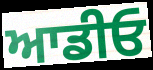
ਆਡੀਓ